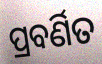
ପ୍ରବର୍ଣିତ